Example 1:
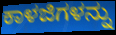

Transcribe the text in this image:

ಕಾಳಜಿಗಳನ್ನು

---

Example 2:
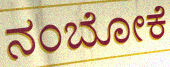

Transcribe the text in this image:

ನಂಬೋಕೆ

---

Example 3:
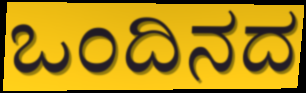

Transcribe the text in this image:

ಒಂದಿನದ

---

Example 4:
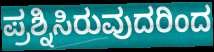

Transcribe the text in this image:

ಪ್ರಶ್ನಿಸಿರುವುದರಿಂದ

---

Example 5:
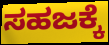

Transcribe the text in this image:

ಸಹಜಕ್ಕೆ